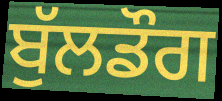
ਬੁੱਲਡੌਗ